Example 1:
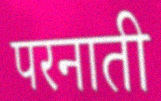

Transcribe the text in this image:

परनाती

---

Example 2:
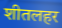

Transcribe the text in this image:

शीतलहर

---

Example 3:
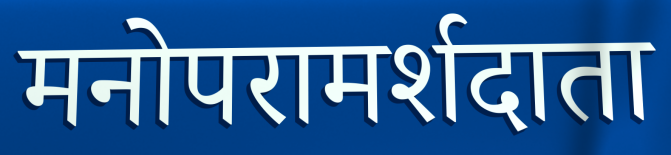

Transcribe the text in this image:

मनोपरामर्शदाता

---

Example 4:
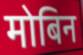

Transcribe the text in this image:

मोबिन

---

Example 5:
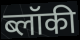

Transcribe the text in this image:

ब्लॉकी